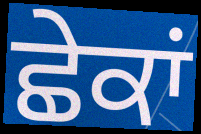
ਛੇਕਾਂ